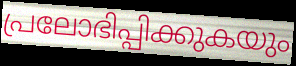
പ്രലോഭിപ്പിക്കുകയും